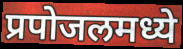
प्रपोजलमध्ये